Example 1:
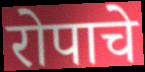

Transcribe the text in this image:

रोपाचे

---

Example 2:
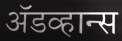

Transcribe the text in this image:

ॲडव्हान्स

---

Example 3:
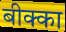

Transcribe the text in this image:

बीक्का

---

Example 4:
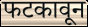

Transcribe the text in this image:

फटकावून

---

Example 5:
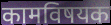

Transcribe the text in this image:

कामविषयक